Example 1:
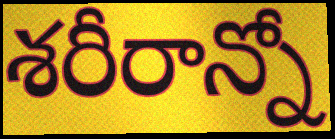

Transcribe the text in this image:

శరీరాన్నో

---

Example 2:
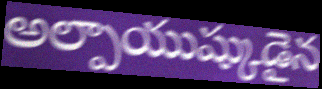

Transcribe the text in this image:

అల్పాయుష్కుడైన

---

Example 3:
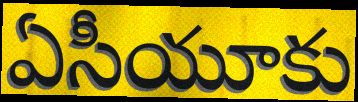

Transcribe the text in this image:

ఏసీయూకు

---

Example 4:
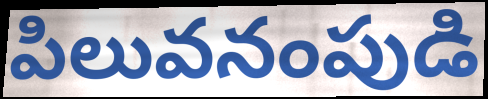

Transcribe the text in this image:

పిలువనంపుడి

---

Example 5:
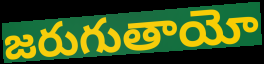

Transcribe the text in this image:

జరుగుతాయో